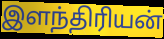
இளந்திரியன்